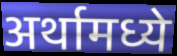
अर्थामध्ये